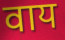
वाय